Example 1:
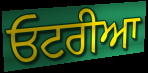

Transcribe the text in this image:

ਓਟਰੀਆ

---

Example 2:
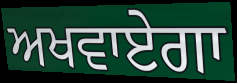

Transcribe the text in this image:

ਅਖਵਾਏਗਾ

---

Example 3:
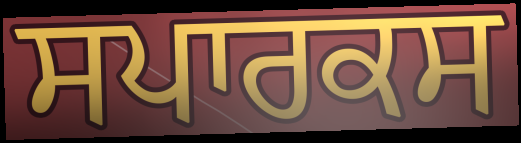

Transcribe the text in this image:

ਸਪਾਰਕਸ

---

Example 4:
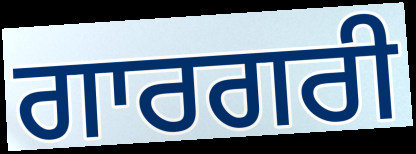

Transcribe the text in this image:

ਗਾਰਗਰੀ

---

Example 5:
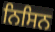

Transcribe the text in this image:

ਨਿਸਿਨ